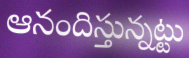
ఆనందిస్తున్నట్టు